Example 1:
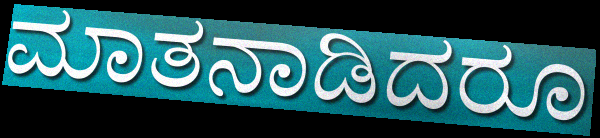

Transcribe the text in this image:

ಮಾತನಾಡಿದರೂ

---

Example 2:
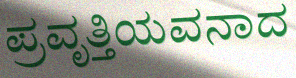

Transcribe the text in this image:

ಪ್ರವೃತ್ತಿಯವನಾದ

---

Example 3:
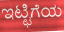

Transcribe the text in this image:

ಇಟ್ಟಿಗೆಯ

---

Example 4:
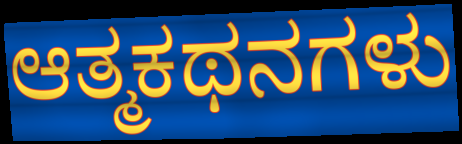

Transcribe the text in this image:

ಆತ್ಮಕಥನಗಳು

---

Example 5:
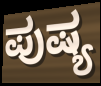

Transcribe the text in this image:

ಪುಷ್ಯ